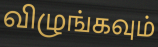
விழுங்கவும்